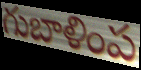
గుబాళింప